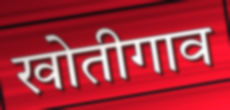
खोतीगाव